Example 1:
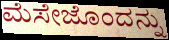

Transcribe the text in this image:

ಮೆಸೇಜೊಂದನ್ನು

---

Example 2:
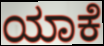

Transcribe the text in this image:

ಯಾಕೆ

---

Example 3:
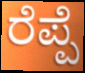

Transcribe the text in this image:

ರೆಪ್ಪೆ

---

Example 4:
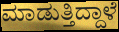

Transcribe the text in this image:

ಮಾಡುತ್ತಿದ್ದಾಳೆ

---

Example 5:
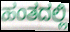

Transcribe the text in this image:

ಹಂತದಲ್ಲಿ